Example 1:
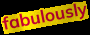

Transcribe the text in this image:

fabulously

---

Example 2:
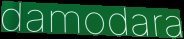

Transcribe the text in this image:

damodara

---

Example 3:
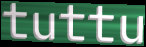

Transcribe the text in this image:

tuttu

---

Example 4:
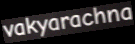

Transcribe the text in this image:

vakyarachna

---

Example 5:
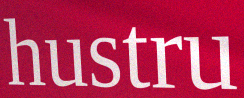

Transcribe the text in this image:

hustru